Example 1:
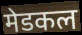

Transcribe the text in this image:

मेडकल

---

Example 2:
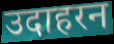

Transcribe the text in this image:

उदाहरन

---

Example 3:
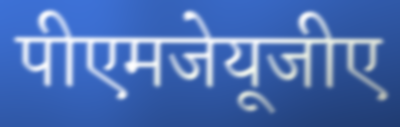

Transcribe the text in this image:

पीएमजेयूजीए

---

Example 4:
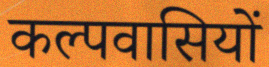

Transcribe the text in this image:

कल्पवासियों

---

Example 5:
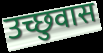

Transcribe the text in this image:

उच्छुवास